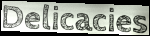
Delicacies